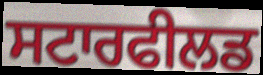
ਸਟਾਰਫੀਲਡ